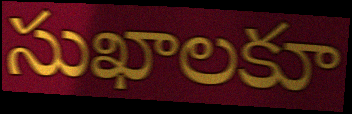
సుఖాలకూ